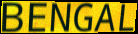
BENGAL